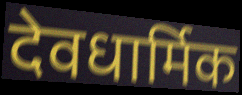
देवधार्मिक